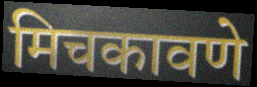
मिचकावणे